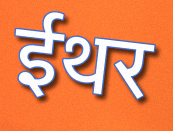
ईथर